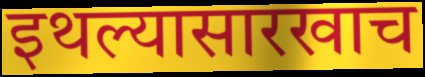
इथल्यासारखाच